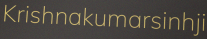
Krishnakumarsinhji